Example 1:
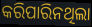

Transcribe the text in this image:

କରିପାରିନଥିଲା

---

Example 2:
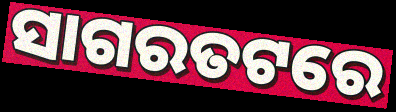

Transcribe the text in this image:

ସାଗରତଟରେ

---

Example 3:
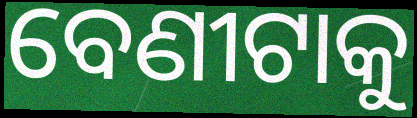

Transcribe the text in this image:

ବେଣୀଟାକୁ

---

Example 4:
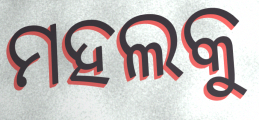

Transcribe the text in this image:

ମହଲକୁ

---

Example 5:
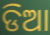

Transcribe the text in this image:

ଡିଆ